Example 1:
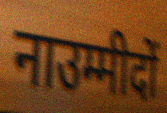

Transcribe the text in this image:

नाउम्मीदों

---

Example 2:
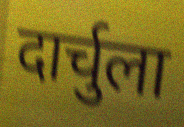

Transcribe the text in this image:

दार्चुला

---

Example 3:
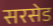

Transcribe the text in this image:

सरसेड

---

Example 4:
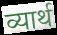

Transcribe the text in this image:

व्यार्थ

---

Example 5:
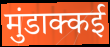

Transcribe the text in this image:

मुंडाक्कई